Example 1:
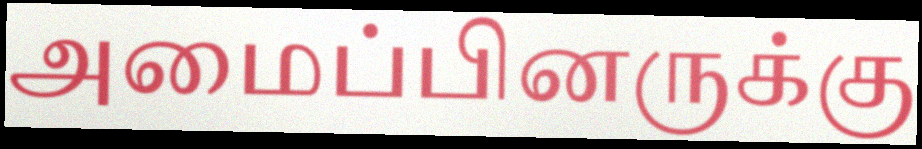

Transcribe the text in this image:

அமைப்பினருக்கு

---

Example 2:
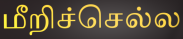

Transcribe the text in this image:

மீறிச்செல்ல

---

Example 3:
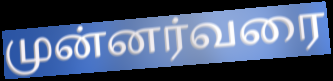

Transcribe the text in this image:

முன்னர்வரை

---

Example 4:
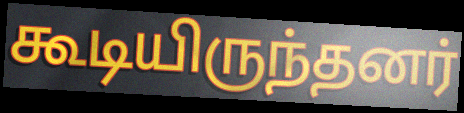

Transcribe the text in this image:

கூடியிருந்தனர்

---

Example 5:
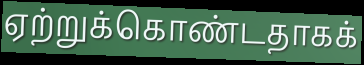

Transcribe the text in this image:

ஏற்றுக்கொண்டதாகக்